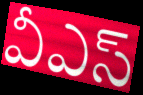
వీఎస్